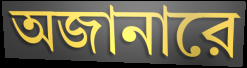
অজানারে